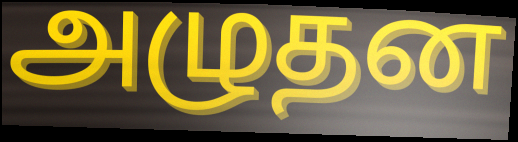
அழுதன